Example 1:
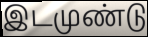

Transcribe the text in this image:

இடமுண்டு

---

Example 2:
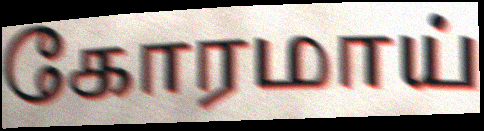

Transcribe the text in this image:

கோரமாய்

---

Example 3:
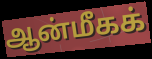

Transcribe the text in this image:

ஆன்மீகக்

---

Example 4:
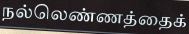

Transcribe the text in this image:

நல்லெண்ணத்தைக்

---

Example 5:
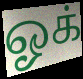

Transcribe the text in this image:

ஓக்